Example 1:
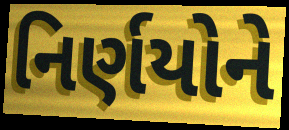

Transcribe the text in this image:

નિર્ણયોને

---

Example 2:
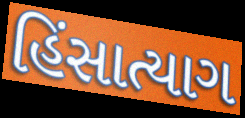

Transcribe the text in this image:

હિંસાત્યાગ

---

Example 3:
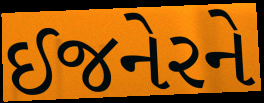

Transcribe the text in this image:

ઈજનેરને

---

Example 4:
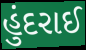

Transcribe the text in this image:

હુંદરાઈ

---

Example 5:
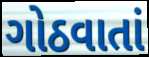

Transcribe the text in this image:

ગોઠવાતાં